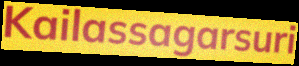
Kailassagarsuri